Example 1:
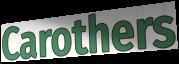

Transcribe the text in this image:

Carothers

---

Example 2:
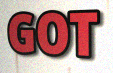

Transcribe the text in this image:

GOT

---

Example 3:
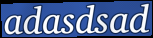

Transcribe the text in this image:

adasdsad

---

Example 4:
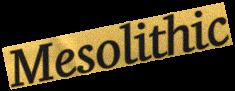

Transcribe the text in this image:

Mesolithic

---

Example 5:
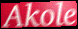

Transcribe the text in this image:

Akole